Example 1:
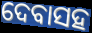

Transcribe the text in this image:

ଦେବାସହ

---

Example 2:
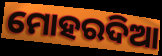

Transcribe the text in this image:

ମୋହରଦିଆ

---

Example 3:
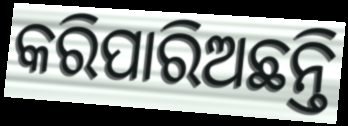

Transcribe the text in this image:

କରିପାରିଅଛନ୍ତି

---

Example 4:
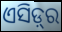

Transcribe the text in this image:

ଏସିଡ଼୍‌ର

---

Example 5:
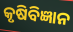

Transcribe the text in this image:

କୃଷିବିଜ୍ଞାନ